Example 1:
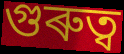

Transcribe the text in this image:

গুৰুত্ব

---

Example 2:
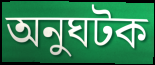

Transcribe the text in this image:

অনুঘটক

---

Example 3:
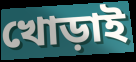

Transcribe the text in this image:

খোড়াই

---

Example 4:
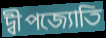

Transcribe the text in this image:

দ্বীপজ্যোতি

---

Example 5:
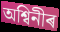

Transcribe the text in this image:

অশ্বিনীৰ